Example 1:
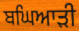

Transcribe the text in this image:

ਬਘਿਆੜੀ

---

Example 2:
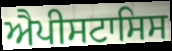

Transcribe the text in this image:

ਐਪੀਸਟਾਸਿਸ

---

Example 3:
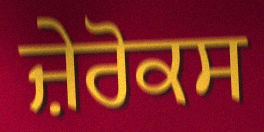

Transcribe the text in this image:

ਜ਼ੇਰੋਕਸ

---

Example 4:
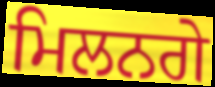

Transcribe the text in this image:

ਮਿਲਨਗੇ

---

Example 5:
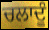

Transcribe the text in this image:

ਚਲਾਦੂੰ